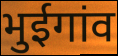
भुईगांव